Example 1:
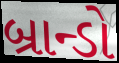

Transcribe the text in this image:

બ્રાન્ડો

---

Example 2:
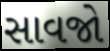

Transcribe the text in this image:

સાવજો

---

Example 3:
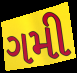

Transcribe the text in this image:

ગમી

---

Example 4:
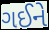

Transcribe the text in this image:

ગઈને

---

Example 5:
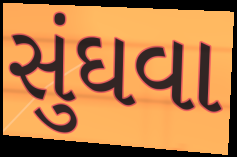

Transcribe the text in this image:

સુંઘવા